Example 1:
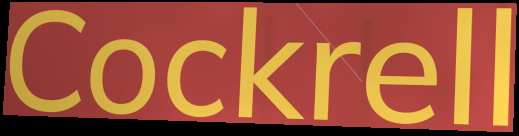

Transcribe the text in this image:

Cockrell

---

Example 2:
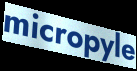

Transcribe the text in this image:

micropyle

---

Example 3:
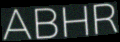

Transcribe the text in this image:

ABHR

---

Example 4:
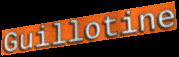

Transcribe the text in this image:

Guillotine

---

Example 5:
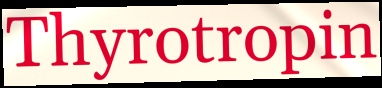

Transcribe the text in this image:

Thyrotropin